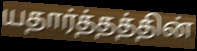
யதார்த்தத்தின்